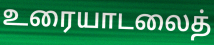
உரையாடலைத்